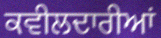
ਕਵੀਲਦਾਰੀਆਂ